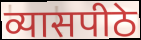
व्यासपीठे